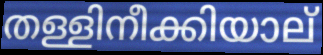
തള്ളിനീക്കിയാല്